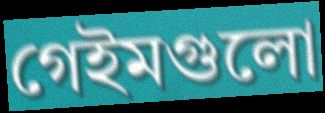
গেইমগুলো